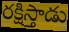
రక్షిస్తాడు